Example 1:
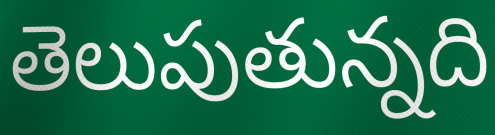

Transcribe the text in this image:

తెలుపుతున్నది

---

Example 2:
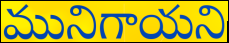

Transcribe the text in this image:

మునిగాయని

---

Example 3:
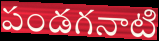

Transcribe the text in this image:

పండగనాటి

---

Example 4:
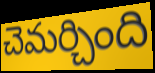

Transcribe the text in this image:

చెమర్చింది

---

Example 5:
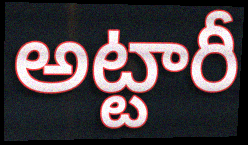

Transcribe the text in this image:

అట్టారీ